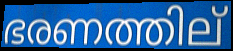
ഭരണത്തില്